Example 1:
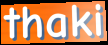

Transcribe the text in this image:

thaki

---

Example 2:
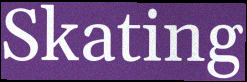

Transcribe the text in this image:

Skating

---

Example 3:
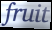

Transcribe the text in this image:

fruit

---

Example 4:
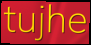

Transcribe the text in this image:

tujhe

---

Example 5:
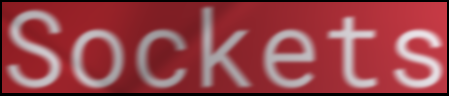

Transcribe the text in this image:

Sockets